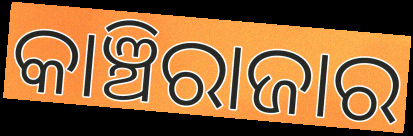
କାଞ୍ଚିରାଜାର